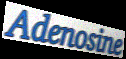
Adenosine